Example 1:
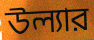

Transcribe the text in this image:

উল্যার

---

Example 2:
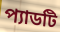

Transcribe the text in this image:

প্যাডটি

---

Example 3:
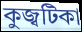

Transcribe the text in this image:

কুজ্বটিকা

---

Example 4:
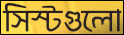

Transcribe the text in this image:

সিস্টগুলো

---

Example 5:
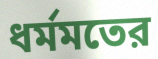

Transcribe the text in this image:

ধর্মমতের